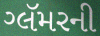
ગ્લૅમરની